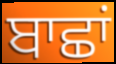
ਬਾਛਾਂ